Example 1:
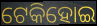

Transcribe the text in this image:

ଟେକିହୋଇ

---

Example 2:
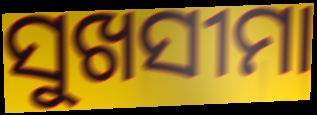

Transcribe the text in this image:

ସୁଖସୀମା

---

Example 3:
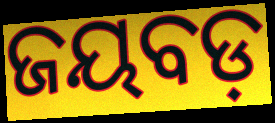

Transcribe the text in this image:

ଜୟବଡ଼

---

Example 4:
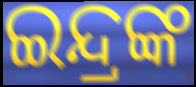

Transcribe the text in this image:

ଇନ୍ଦ୍ରଙ୍କ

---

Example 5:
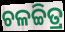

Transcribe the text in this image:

ଚଳଚ୍ଚିତ୍ର